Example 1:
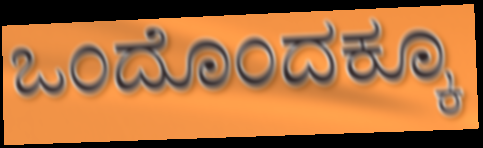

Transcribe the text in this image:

ಒಂದೊಂದಕ್ಕೂ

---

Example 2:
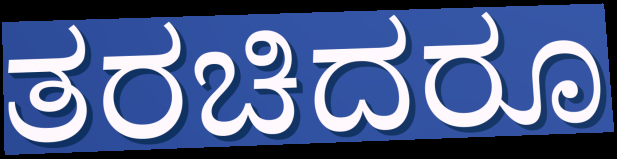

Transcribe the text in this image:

ತರಚಿದರೂ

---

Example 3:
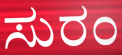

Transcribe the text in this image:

ಸುರಂ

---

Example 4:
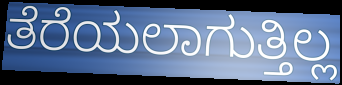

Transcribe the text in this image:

ತೆರೆಯಲಾಗುತ್ತಿಲ್ಲ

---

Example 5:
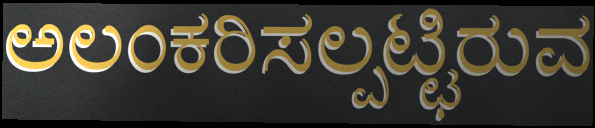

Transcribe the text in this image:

ಅಲಂಕರಿಸಲ್ಪಟ್ಟಿರುವ